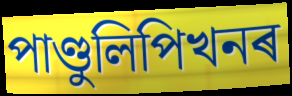
পাণ্ডুলিপিখনৰ